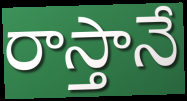
రాస్తానే